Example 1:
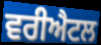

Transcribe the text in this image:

ਵਰੀਐਟਲ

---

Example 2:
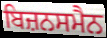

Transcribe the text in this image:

ਬਿਜ਼ਨਸਮੈਨ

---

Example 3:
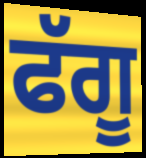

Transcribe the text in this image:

ਫੱਗੂ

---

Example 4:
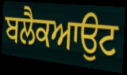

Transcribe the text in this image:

ਬਲੈਕਆਉਟ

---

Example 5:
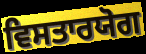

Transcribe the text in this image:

ਵਿਸਤਾਰਯੋਗ